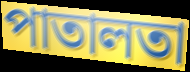
পাতালতা